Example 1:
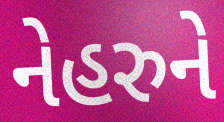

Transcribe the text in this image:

નેહરુને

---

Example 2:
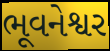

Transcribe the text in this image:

ભૂવનેશ્વર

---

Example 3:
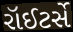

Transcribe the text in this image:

રૉઈટર્સે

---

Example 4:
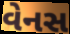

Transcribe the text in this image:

વેનસ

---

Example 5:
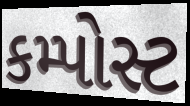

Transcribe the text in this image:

કમ્પોસ્ટ